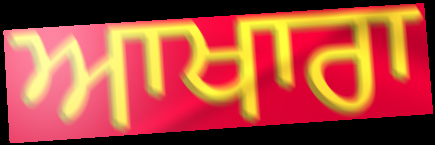
ਆਖਾਰਾ